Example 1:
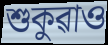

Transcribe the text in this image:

শুকুৱাও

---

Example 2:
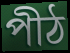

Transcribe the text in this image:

পীঠ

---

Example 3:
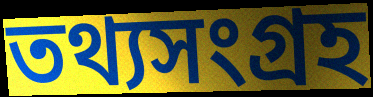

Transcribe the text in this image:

তথ্যসংগ্ৰহ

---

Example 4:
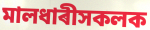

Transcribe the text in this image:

মালধাৰীসকলক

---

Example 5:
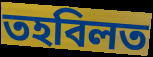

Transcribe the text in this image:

তহবিলত